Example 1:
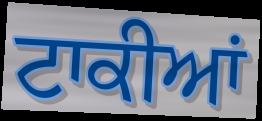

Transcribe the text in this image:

ਟਾਕੀਆਂ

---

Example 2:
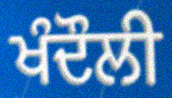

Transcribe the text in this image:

ਖੰਦੌਲੀ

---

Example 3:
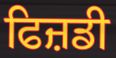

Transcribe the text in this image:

ਫਿਜ਼ਡੀ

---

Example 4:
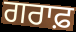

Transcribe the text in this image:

ਗਰਾਫ਼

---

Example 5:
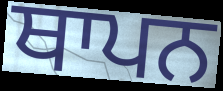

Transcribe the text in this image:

ਥਾਪਨ